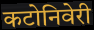
कटोनिवेरी